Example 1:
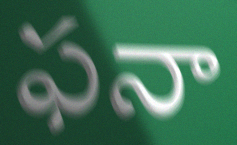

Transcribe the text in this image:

ఫనా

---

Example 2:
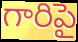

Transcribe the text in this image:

గారిపై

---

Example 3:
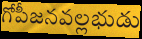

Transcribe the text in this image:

గోపీజనవల్లభుడు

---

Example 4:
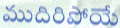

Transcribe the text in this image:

ముదిరిపోయే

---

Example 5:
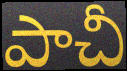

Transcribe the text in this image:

పాచీ